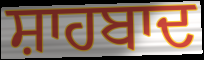
ਸ਼ਾਹਬਾਦ